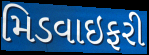
મિડવાઇફરી